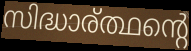
സിദ്ധാര്ത്ഥന്റെ